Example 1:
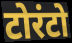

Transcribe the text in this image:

टोरंटो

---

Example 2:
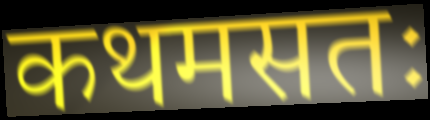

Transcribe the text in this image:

कथमसतः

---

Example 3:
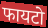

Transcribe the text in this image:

फायटो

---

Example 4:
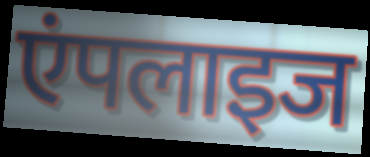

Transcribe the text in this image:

एंपलाइज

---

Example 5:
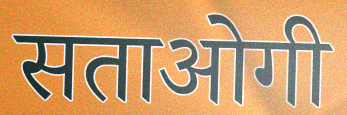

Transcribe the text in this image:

सताओगी